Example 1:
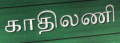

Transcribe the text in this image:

காதிலணி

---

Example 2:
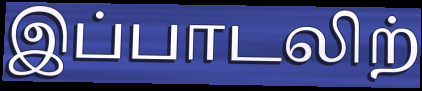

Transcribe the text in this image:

இப்பாடலிற்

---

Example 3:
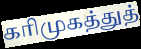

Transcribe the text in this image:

கரிமுகத்துத்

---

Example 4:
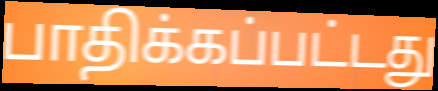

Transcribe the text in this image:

பாதிக்கப்பட்டது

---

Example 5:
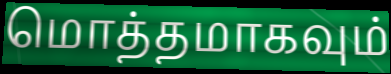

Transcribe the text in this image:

மொத்தமாகவும்